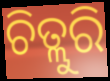
ଚିତ୍ଲୁରି